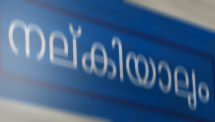
നല്‌കിയാലും